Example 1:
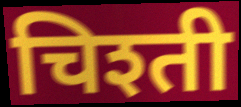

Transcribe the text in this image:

चिश्ती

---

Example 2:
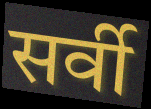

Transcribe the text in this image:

सर्वी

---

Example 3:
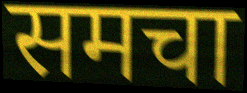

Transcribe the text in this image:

समचा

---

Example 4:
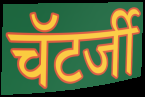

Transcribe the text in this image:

चॅटर्जी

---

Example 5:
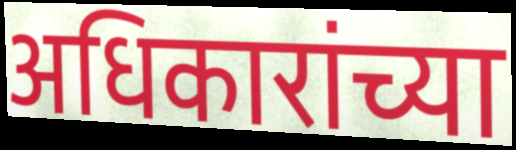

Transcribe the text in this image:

अधिकारांच्या